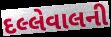
દલ્લેવાલની